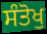
ਸੰਤੋਖੁ